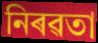
নিৰৱতা